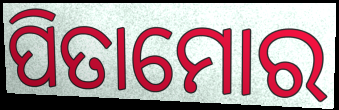
ପିତାମୋର